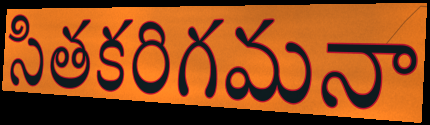
సితకరిగమనా